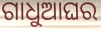
ଗାଧୁଆଘର